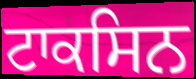
ਟਾਕਸਿਨ